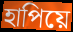
হাপিয়ে